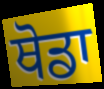
ਥੋਡਾ